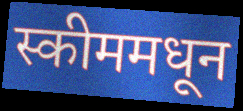
स्कीममधून